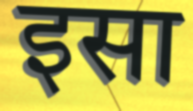
इसा